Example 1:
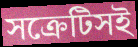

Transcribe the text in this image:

সক্রেটিসই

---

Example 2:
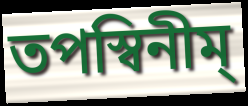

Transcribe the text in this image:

তপস্বিনীম্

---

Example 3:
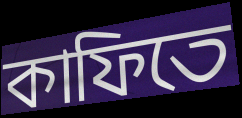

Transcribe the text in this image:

কাফিতে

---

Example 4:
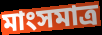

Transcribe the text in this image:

মাংসমাত্র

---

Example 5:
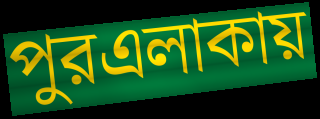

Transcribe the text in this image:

পুরএলাকায়